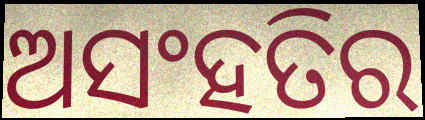
ଅସଂହତିର